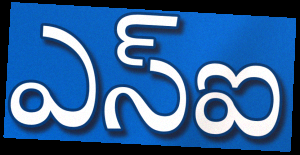
ఎస్ఐ